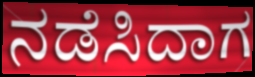
ನಡೆಸಿದಾಗ